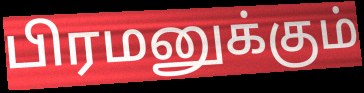
பிரமனுக்கும்